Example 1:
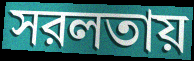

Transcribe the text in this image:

সরলতায়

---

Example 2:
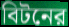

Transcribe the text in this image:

বিটনের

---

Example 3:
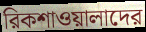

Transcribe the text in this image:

রিকশাওয়ালাদের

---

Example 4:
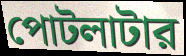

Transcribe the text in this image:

পোটলাটার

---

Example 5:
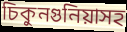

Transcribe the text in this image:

চিকুনগুনিয়াসহ